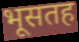
भूसतह